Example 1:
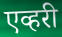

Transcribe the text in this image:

एव्हरी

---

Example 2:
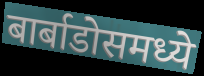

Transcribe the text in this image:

बार्बाडोसमध्ये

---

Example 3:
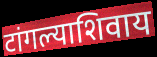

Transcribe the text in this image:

टांगल्याशिवाय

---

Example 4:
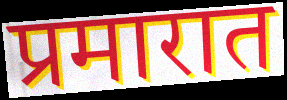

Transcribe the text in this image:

प्रमारात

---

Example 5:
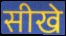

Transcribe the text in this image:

सीखे